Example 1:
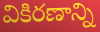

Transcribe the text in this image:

వికిరణాన్ని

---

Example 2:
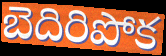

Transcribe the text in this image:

బెదిరిపోక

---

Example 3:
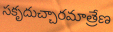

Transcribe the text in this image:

సకృదుచ్చారమాత్రేణ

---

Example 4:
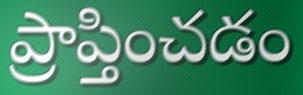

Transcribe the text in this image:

ప్రాప్తించడం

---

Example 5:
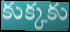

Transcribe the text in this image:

కుక్కకు